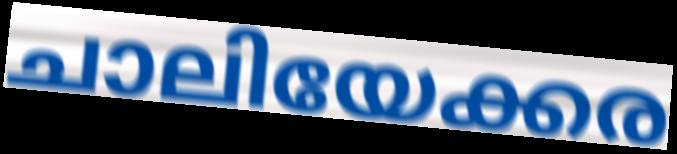
ചാലിയേക്കര